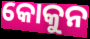
କୋକୁନ